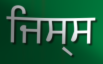
ਜਿਸ੍ਸ